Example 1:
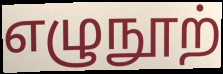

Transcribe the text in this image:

எழுநூற்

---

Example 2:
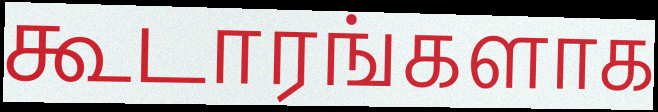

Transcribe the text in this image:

கூடாரங்களாக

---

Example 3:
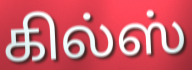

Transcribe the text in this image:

கில்ஸ்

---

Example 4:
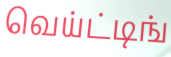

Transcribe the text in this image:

வெய்ட்டிங்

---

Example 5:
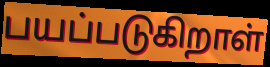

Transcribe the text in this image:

பயப்படுகிறாள்